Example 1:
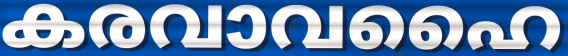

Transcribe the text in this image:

കരവാവഹൈ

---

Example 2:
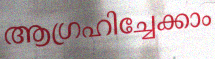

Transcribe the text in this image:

ആഗ്രഹിച്ചേക്കാം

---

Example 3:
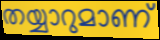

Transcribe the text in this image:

തയ്യാറുമാണ്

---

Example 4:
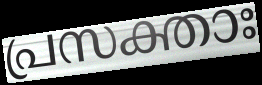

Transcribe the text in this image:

പ്രസക്താഃ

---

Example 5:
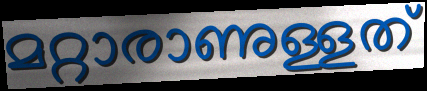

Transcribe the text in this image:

മറ്റാരാണുള്ളത്